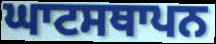
ਘਾਟਸਥਾਪਨ